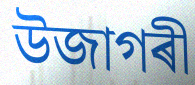
উজাগৰী